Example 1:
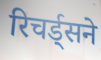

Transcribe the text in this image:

रिचर्ड्सने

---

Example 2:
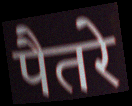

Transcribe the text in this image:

पैतरे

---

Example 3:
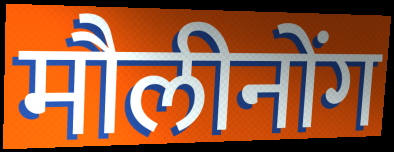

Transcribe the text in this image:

मौलीनोंग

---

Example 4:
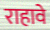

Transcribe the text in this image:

राहावे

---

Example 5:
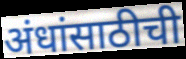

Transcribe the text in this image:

अंधांसाठीची